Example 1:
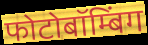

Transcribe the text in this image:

फोटोबॉम्बिंग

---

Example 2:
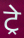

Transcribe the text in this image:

ट्रे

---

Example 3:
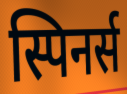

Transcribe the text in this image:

स्पिनर्स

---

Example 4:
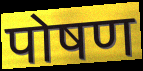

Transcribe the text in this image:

पोषण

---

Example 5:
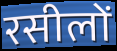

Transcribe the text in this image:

रसीलों